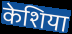
केशिया